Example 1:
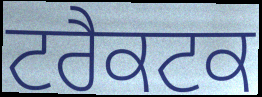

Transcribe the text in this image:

ਟਰੈਕਟਕ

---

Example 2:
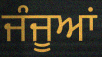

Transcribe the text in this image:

ਜੰਜੂਆਂ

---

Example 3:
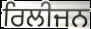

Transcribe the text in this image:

ਰਿਲੀਜਨ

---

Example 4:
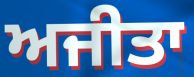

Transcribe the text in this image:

ਅਜੀਤਾ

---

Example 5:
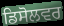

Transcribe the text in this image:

ਡਿਸੋਲਵਰ